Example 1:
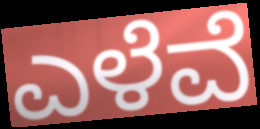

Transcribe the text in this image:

ಎಳೆವೆ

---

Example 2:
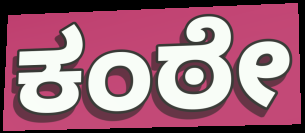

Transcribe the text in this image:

ಕಂಠೇ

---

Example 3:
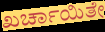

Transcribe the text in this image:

ಖರ್ಚಾಯಿತೇ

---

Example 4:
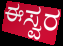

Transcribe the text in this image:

ಈಸ್ವರ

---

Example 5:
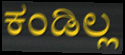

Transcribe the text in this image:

ಕಂಡಿಲ್ಲ